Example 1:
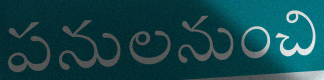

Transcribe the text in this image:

పనులనుంచి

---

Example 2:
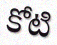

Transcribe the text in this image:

కోటి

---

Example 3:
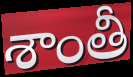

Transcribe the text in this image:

శాంతీ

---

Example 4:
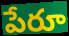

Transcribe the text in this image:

పేరూ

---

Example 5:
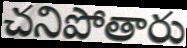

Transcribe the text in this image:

చనిపోతారు